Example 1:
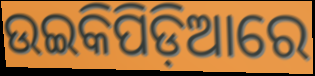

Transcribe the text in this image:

ଉଇକିପିଡ଼ିଆରେ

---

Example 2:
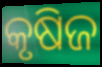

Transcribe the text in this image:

କୃଷିଜ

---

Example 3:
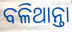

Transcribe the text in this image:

ବଳିଥାନ୍ତା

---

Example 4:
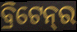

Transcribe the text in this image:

ବ୍ରିଟେନ୍‌ର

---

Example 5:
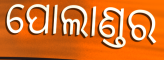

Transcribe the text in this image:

ପୋଲାଣ୍ଡର